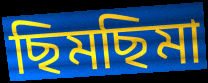
ছিমছিমা